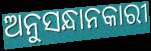
ଅନୁସନ୍ଧାନକାରୀ